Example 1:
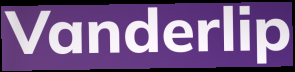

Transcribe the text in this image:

Vanderlip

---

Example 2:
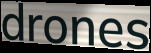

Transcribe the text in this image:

drones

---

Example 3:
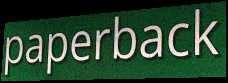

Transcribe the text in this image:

paperback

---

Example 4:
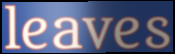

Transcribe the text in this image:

leaves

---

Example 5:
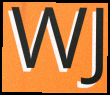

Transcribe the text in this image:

WJ